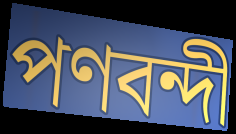
পণবন্দী